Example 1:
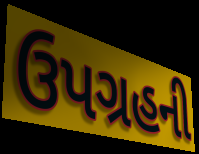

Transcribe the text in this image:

ઉપગ્રહની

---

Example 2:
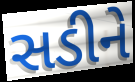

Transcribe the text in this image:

સડીને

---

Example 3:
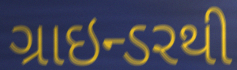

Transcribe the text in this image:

ગ્રાઇન્ડરથી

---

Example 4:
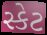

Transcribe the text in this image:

સ્કેટ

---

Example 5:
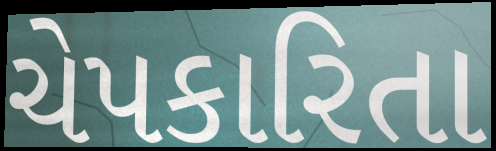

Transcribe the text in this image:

ચેપકારિતા